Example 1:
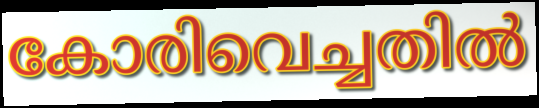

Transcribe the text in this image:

കോരിവെച്ചതിൽ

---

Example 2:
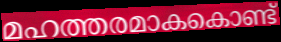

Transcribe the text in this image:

മഹത്തരമാകകൊണ്ട്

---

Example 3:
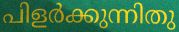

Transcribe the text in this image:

പിളർക്കുന്നിതു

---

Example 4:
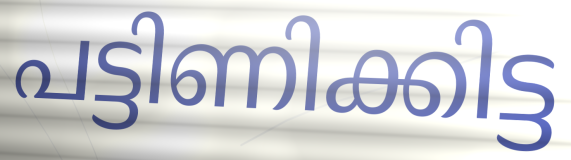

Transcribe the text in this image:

പട്ടിണിക്കിട്ട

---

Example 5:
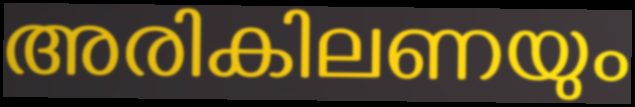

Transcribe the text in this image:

അരികിലണയും